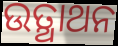
ଉତ୍ଥାଥନ